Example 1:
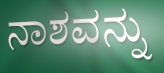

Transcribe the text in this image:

ನಾಶವನ್ನು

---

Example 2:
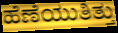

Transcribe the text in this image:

ಹೆಣೆಯುತಿತ್ತು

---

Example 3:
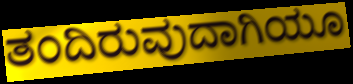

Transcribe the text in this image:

ತಂದಿರುವುದಾಗಿಯೂ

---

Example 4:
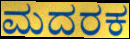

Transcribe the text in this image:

ಮದರಕ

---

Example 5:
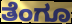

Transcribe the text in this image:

ತೆಂಗೂ